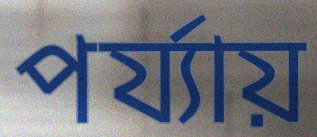
পৰ্য্যায়